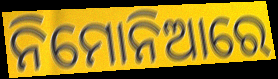
ନିମୋନିଆରେ